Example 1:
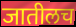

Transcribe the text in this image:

जातीलच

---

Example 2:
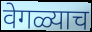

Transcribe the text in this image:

वेगळ्याच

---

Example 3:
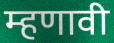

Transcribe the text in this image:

म्हणावी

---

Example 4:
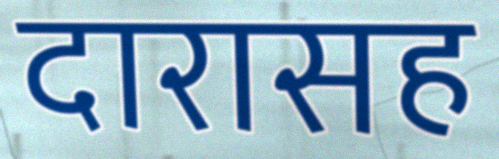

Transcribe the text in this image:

दारासह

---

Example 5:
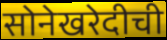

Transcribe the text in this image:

सोनेखरेदीची